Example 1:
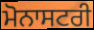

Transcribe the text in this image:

ਮੋਨਾਸਟਰੀ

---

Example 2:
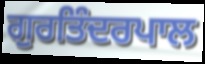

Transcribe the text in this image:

ਗੁਰਤਿੰਦਰਪਾਲ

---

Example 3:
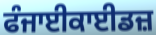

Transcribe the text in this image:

ਫੰਜਾਈਕਾਈਡਜ਼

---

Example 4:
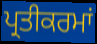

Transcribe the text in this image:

ਪ੍ਰਤੀਕਰਮਾਂ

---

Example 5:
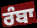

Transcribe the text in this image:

ਰੰਬਾ